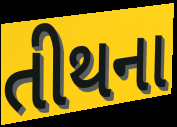
તીથના